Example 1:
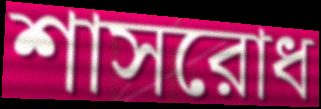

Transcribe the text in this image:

শাসরোধ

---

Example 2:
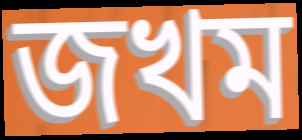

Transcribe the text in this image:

জখম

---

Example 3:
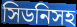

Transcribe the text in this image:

সিডনিসহ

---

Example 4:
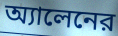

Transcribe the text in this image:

অ্যালেনের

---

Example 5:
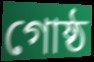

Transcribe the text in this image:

গোষ্ঠ